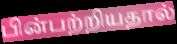
பின்பற்றியதால்